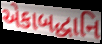
એકાબદ્ધાનિ